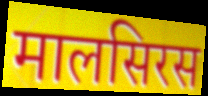
मालसिरस